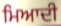
ਮਿਆਦੀ